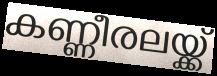
കണ്ണീരലയ്ക്ക്